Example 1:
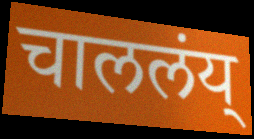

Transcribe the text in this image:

चाललंय्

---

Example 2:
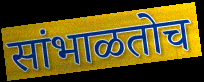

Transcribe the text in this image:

सांभाळतोच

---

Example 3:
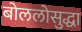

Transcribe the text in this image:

बोललोसुद्धा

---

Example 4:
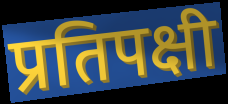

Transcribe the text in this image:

प्रतिपक्षी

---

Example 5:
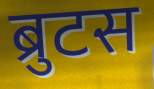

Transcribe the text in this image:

ब्रुटस